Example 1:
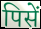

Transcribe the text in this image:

पिसें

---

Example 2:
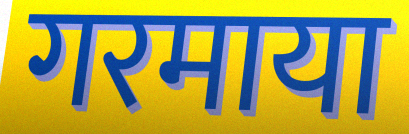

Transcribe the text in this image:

गरमाया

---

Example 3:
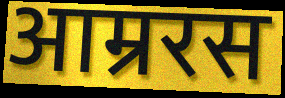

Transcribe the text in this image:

आम्ररस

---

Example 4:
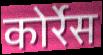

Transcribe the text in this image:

कोर्रेस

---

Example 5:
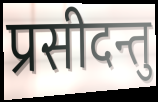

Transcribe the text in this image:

प्रसीदन्तु